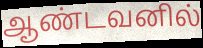
ஆண்டவனில்